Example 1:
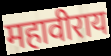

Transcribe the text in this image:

महावीराय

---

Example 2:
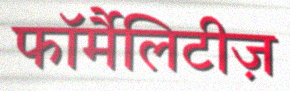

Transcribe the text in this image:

फॉर्मैलिटीज़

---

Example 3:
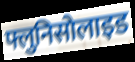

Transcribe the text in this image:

फ्लुनिसोलाइड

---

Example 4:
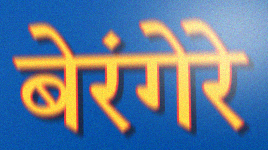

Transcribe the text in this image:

बेरंगेरे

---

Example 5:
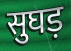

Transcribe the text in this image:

सुघड़